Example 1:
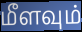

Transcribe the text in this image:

மீளவும்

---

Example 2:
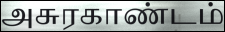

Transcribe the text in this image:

அசுரகாண்டம்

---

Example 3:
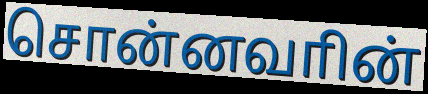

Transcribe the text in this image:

சொன்னவரின்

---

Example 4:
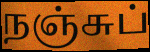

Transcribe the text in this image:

நஞ்சுப்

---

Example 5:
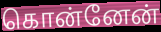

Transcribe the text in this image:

கொன்னேன்